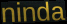
ninda